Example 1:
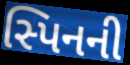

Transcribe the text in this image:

સ્પિનની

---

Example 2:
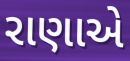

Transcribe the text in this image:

રાણાએ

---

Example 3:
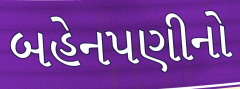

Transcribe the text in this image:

બહેનપણીનો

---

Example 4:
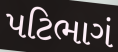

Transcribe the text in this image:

પટિભાગં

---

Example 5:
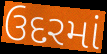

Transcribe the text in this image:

ઉદરમાં